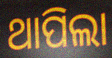
ଥାପିଲା